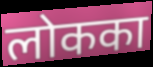
लोकका